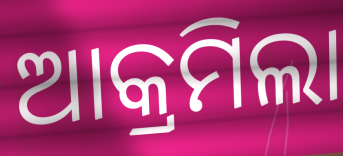
ଆକ୍ରମିଲା